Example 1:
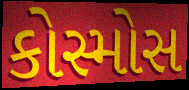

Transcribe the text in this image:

કોસ્મોસ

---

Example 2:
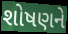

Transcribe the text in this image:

શોષણને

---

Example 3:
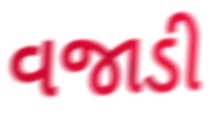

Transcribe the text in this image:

વજાડી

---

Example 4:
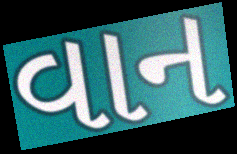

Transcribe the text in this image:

વાન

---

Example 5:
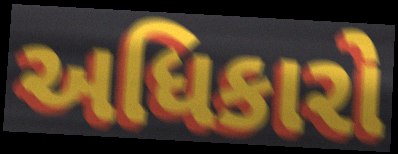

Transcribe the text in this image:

અધિકારો